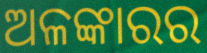
ଅଳଙ୍କାରର